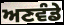
ਅਣਵੰਡੇ